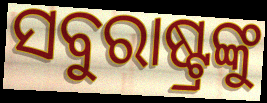
ସବୁରାଷ୍ଟ୍ରଙ୍କୁ